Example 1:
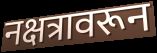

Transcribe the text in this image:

नक्षत्रावरून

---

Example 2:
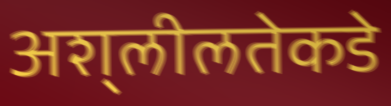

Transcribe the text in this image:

अश्लीलतेकडे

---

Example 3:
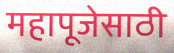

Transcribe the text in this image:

महापूजेसाठी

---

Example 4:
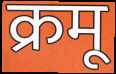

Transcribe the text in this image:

क्रमू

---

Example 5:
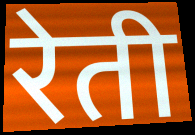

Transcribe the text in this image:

रेती